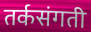
तर्कसंगती